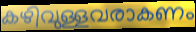
കഴിവുള്ളവരാകണം